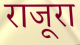
राजूरा